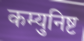
कम्युनिष्ट